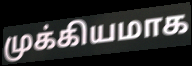
முக்கியமாக